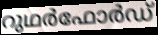
റുഥർഫോർഡ്